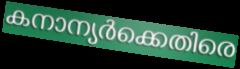
കനാന്യർക്കെതിരെ